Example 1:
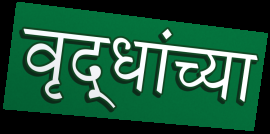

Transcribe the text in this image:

वृद्धांच्या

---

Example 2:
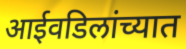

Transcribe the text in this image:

आईवडिलांच्यात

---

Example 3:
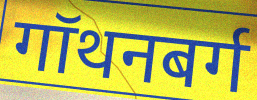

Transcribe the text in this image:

गॉथनबर्ग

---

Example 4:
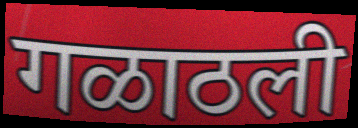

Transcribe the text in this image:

गळाठली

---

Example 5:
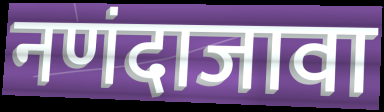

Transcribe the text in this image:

नणंदाजावा